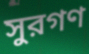
সুরগণ